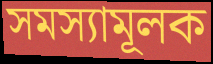
সমস্যামূলক